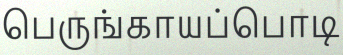
பெருங்காயப்பொடி